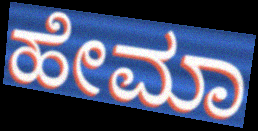
ಹೇಮಾ